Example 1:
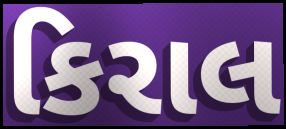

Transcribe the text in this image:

કિરાલ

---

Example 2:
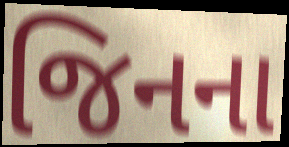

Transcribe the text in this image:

જિનના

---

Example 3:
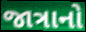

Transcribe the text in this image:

જાત્રાનો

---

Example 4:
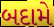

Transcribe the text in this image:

બદામે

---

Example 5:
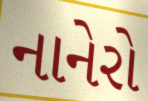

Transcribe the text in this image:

નાનેરો